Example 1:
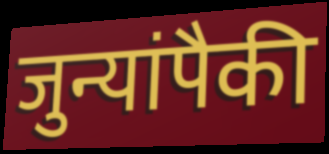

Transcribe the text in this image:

जुन्यांपैकी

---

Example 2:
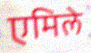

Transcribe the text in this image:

एमिले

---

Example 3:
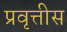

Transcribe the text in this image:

प्रवृत्तीस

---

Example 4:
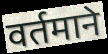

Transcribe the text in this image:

वर्तमाने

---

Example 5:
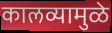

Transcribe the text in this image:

कालव्यामुळे